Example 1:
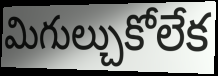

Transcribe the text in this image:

మిగుల్చుకోలేక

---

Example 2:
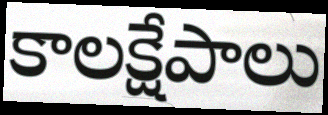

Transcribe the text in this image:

కాలక్షేపాలు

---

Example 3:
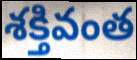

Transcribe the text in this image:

శక్తివంత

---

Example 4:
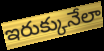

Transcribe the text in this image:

ఇరుక్కునేలా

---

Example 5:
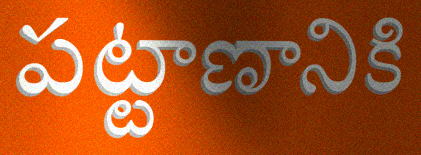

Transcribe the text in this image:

పట్టాణానికి